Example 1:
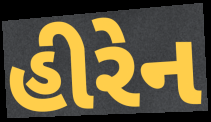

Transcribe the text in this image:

હીરેન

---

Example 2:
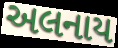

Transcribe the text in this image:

અલનાય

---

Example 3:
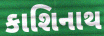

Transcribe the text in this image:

કાશિનાથ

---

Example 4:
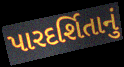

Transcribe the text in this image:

પારદર્શિતાનું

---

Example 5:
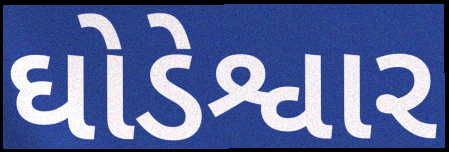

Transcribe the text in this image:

ઘોડેશ્વાર